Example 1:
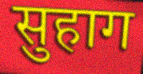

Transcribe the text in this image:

सुहाग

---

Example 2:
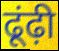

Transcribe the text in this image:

ढूंढ़ी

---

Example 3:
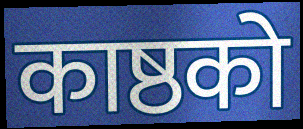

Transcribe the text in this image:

काष्ठको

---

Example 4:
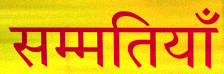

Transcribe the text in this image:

सम्मतियाँ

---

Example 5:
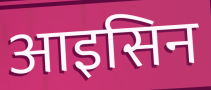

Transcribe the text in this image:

आइसिन